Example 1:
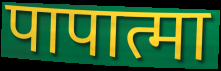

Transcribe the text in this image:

पापात्मा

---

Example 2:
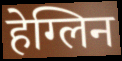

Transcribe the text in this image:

हेग्लिन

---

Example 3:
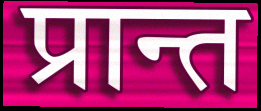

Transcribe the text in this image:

प्रान्त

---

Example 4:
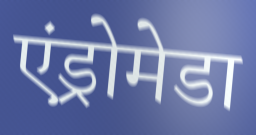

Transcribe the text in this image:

एंड्रोमेडा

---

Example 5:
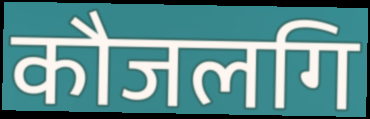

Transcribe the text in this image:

कौजलगि